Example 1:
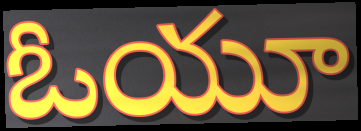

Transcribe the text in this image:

ఓయూ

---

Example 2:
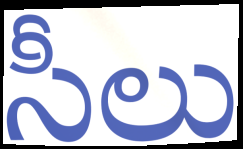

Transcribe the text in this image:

సీలు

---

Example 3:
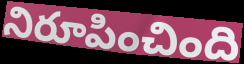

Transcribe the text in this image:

నిరూపించింది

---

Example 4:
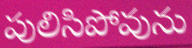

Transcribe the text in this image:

పులిసిపోవును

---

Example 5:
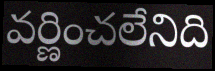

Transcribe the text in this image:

వర్ణించలేనిది